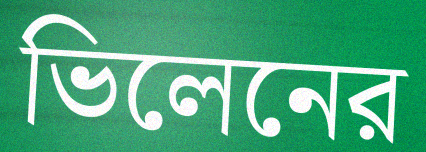
ভিলেনের